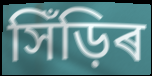
সিঁড়িৰ